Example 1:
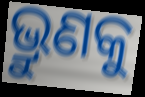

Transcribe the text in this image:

ଭ୍ରୁଣକୁ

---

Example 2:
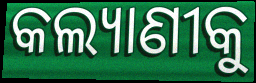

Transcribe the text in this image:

କଲ୍ୟାଣୀକୁ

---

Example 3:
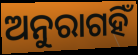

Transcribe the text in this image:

ଅନୁରାଗହିଁ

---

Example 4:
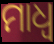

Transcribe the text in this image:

ମାଧ୍ଵ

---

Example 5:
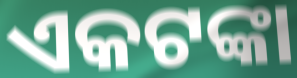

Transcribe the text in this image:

ଏକଟଙ୍କା